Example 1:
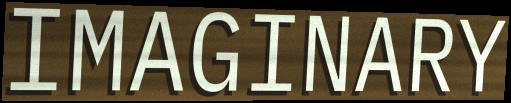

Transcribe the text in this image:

IMAGINARY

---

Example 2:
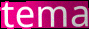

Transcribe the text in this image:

tema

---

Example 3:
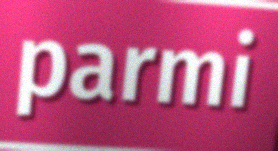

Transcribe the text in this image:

parmi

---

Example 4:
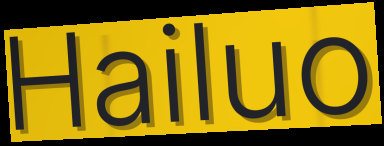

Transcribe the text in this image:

Hailuo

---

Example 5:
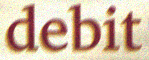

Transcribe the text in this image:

debit